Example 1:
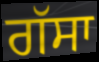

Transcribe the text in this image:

ਗੱਸਾ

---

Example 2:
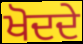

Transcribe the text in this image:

ਖੋਦਦੇ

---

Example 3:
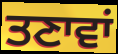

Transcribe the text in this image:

ਤਣਾਵਾਂ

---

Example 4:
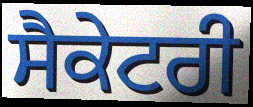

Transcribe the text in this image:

ਸੈਕੇਟਰੀ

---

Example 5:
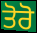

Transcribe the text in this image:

ਤੋਰੋ